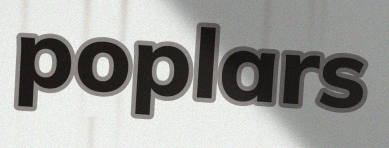
poplars